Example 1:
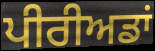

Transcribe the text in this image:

ਪੀਰੀਅਡਾਂ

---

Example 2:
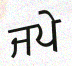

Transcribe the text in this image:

ਜਪੇ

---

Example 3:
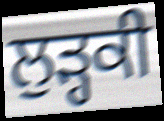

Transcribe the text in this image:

ਲੁੜ੍ਹਕੀ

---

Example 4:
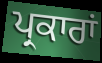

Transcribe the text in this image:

ਪ੍ਰਕਾਰਾਂ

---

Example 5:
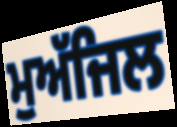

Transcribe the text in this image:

ਮੁਅੱਜਿਲ